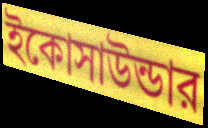
ইকোসাউন্ডার